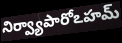
నిర్వ్యాపారోఽహమ్